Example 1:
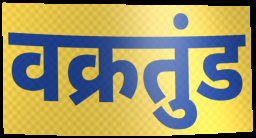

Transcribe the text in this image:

वक्रतुंड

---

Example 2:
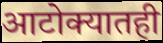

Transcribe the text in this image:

आटोक्यातही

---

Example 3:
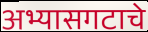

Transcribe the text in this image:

अभ्यासगटाचे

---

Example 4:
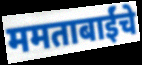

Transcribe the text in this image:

ममताबाईंचे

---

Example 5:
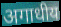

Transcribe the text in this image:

अगाधीय